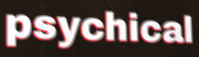
psychical